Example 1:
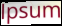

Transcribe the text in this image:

Ipsum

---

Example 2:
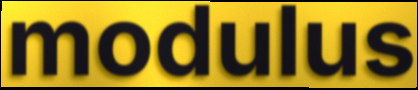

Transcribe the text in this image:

modulus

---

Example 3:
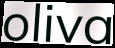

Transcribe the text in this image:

oliva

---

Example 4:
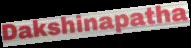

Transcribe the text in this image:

Dakshinapatha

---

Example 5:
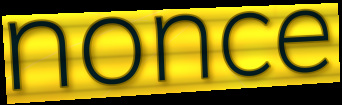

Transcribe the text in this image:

nonce